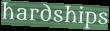
hardships